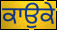
ਕਾਉਕੇ